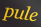
pule